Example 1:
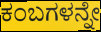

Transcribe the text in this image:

ಕಂಬಗಳನ್ನೇ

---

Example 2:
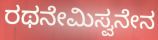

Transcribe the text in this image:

ರಥನೇಮಿಸ್ವನೇನ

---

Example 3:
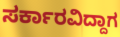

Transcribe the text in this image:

ಸರ್ಕಾರವಿದ್ದಾಗ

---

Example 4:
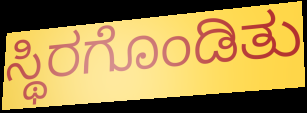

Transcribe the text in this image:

ಸ್ಥಿರಗೊಂಡಿತು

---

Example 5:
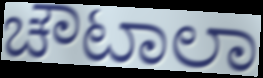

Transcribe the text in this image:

ಚೌಟಾಲಾ